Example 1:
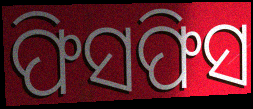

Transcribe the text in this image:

ଫିସଫିସ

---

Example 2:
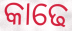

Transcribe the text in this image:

କାଢେ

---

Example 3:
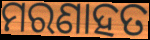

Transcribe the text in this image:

ମରଣାହତ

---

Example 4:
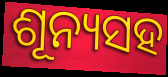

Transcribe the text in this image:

ଶୂନ୍ୟସହ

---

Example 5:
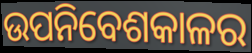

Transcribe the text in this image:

ଉପନିବେଶକାଳର